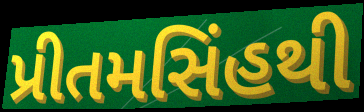
પ્રીતમસિંહથી